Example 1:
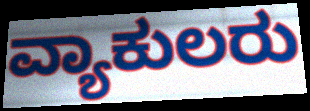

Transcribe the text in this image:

ವ್ಯಾಕುಲರು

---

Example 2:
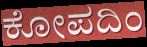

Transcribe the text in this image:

ಕೋಪದಿಂ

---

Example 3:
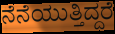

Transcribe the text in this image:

ನೆನೆಯುತ್ತಿದ್ದರೆ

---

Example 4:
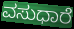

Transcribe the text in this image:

ವಸುಧಾರೆ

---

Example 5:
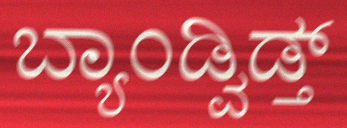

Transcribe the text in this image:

ಬ್ಯಾಂಡ್ವಿಡ್ತ್